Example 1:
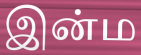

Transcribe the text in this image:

இன்ம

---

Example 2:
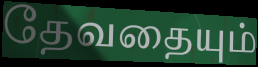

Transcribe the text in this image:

தேவதையும்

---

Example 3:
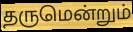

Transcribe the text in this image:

தருமென்றும்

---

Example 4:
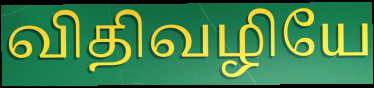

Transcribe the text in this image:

விதிவழியே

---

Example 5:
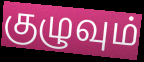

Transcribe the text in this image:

குழுவும்